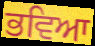
ਭਵਿਆ